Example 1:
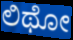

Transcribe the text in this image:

ಲಿಥೋ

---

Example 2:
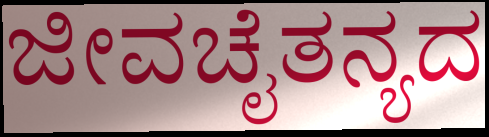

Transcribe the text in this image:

ಜೀವಚೈತನ್ಯದ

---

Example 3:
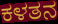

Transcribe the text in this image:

ಕಳತನ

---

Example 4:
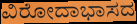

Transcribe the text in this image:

ವಿರೋದಾಭಾಸದ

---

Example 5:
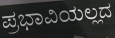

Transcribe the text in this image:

ಪ್ರಭಾವಿಯಲ್ಲದ